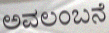
ಅವಲಂಬನೆ